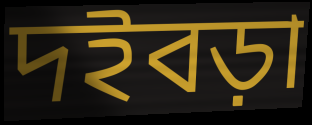
দইবড়া